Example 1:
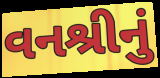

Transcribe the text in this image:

વનશ્રીનું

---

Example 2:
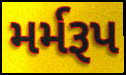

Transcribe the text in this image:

મર્મરૂપ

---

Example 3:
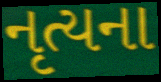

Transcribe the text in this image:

નૃત્યના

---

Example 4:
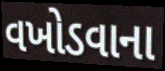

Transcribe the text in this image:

વખોડવાના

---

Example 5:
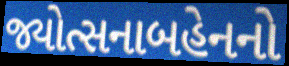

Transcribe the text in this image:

જ્યોત્સનાબહેનનો